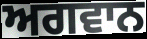
ਅਗਵਾਨ